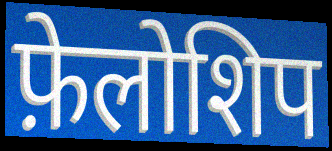
फ़ेलोशिप